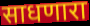
साधणारा